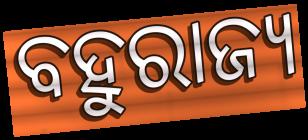
ବହୁରାଜ୍ୟ